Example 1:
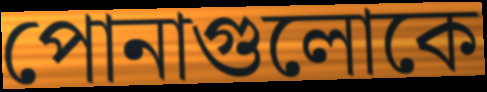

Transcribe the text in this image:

পোনাগুলোকে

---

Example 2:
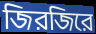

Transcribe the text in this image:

জিরজিরে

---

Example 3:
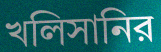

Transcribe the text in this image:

খলিসানির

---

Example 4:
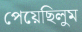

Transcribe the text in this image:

পেয়েছিলুম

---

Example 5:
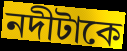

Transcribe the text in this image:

নদীটাকে